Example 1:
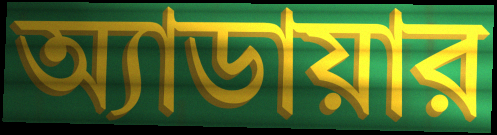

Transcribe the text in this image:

অ্যাডায়ার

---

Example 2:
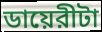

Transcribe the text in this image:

ডায়েরীটা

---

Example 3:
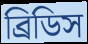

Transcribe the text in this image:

ব্রিডিস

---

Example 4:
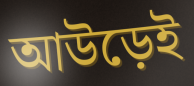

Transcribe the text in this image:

আউড়েই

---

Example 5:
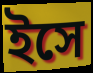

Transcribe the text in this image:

ইসে